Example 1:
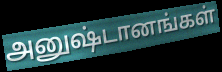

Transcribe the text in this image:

அனுஷ்டானங்கள்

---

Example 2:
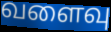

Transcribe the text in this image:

வளைவு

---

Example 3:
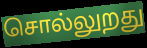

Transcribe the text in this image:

சொல்லுறது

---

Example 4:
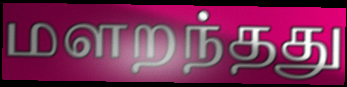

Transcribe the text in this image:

மளறந்தது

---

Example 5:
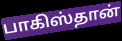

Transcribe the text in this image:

பாகிஸ்தான்